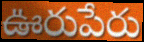
ఊరుపేరు